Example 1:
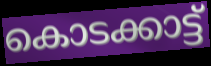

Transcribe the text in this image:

കൊടക്കാട്ട്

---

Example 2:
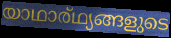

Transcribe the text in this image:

യാഥാര്ഥ്യങ്ങളുടെ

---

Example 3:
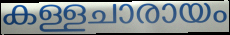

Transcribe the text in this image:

കള്ളചാരായം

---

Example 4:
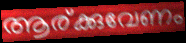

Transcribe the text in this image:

ആര്ക്കുവേണം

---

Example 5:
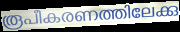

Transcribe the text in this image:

രൂപീകരണത്തിലേക്കു